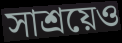
সাশ্রয়েও